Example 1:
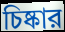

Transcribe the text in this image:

চিষ্কার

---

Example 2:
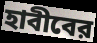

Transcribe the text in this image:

হাবীবের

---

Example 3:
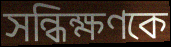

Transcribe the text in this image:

সন্ধিক্ষণকে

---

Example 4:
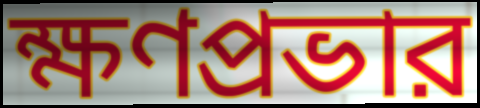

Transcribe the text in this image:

ক্ষণপ্রভার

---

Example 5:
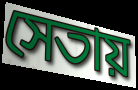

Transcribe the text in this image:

সেতায়